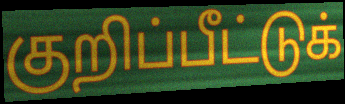
குறிப்பீட்டுக்